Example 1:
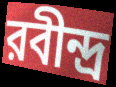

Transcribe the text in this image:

রবীন্দ্র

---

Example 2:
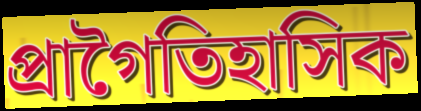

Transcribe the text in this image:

প্রাগৈতিহাসিক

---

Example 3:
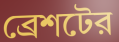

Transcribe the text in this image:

ব্রেশটের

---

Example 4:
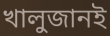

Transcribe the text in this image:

খালুজানই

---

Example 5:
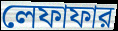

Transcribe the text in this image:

লেফাফার